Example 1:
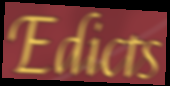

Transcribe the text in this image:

Edicts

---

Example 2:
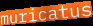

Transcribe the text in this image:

muricatus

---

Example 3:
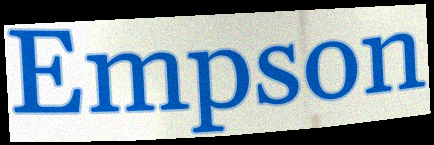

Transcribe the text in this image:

Empson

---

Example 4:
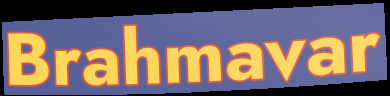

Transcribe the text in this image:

Brahmavar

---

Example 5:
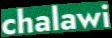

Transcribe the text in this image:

chalawi